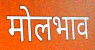
मोलभाव